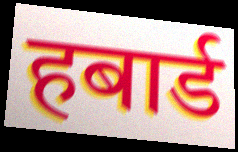
हबार्ड